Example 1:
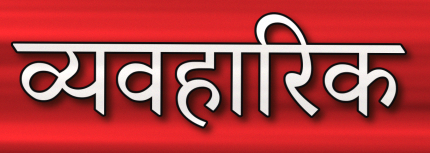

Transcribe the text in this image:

व्यवहारिक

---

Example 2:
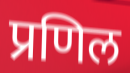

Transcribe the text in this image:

प्रणिल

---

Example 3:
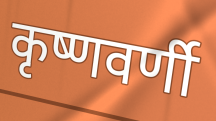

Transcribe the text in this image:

कृष्णवर्णी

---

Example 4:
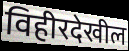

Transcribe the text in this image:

विहीरदेखील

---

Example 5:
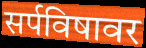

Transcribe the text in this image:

सर्पविषावर